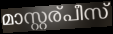
മാസ്റ്റര്പീസ്